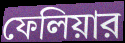
ফেলিয়ার